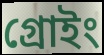
গ্রোইং